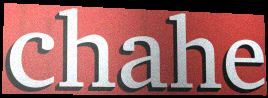
chahe